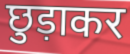
छुड़ाकर